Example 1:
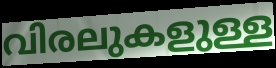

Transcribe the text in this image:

വിരലുകളുള്ള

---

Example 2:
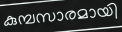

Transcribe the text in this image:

കുമ്പസാരമായി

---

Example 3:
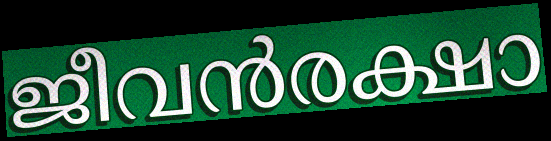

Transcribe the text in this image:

ജീവൻരക്ഷാ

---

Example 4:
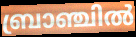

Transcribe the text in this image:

ബ്രാഞ്ചിൽ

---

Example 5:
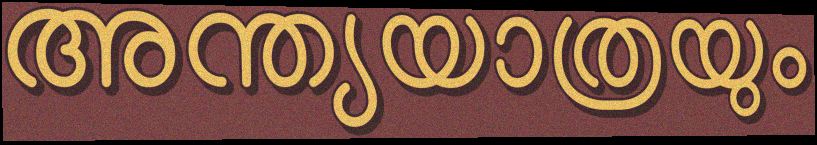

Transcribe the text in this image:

അന്ത്യയാത്രയും